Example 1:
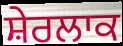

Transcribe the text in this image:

ਸ਼ੇਰਲਾਕ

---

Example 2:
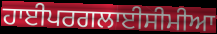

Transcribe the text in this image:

ਹਾਈਪਰਗਲਾਈਸੀਮੀਆ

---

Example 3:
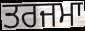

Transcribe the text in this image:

ਤਰਜਮਾ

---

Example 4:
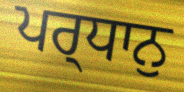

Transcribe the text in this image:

ਪਰ੍ਧਾਨੁ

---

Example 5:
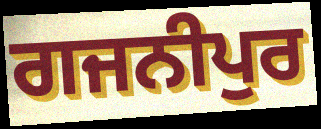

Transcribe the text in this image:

ਗਜਨੀਪੁਰ